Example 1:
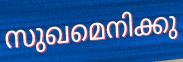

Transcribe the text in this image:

സുഖമെനിക്കു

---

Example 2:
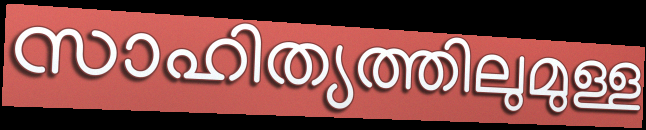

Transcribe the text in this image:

സാഹിത്യത്തിലുമുള്ള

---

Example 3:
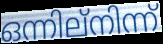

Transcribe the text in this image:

ഒന്നില്നിന്ന്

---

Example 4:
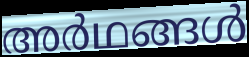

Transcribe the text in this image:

അർഥങ്ങൾ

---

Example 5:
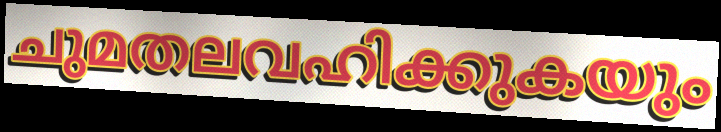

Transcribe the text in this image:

ചുമതലവഹിക്കുകയും